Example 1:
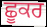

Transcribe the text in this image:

ਛੂਕਰ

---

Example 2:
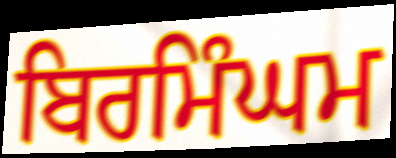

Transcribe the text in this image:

ਬਿਰਮਿੰਘਮ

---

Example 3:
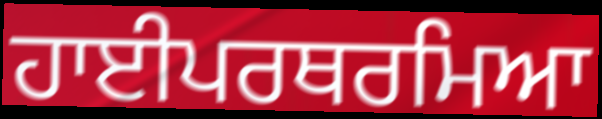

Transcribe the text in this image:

ਹਾਈਪਰਥਰਮਿਆ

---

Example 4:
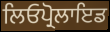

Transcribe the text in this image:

ਲਿਓਪ੍ਰੋਲਾਇਡ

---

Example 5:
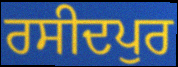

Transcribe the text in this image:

ਰਸੀਦਪੁਰ